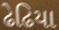
ઢેઢિયા